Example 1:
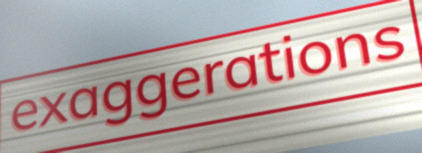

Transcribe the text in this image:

exaggerations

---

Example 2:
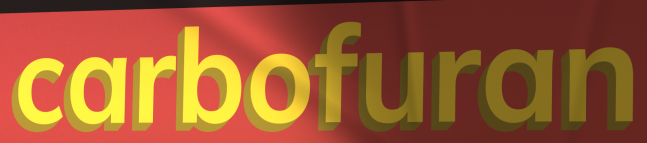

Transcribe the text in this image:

carbofuran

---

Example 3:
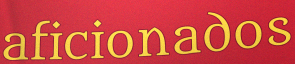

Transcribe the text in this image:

aficionados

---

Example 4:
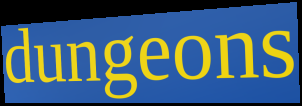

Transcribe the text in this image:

dungeons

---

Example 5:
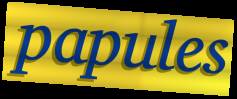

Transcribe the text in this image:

papules